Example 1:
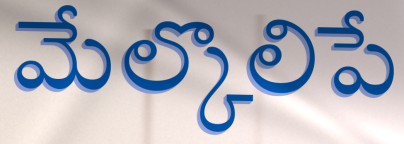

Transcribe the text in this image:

మేల్కొలిపే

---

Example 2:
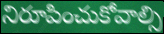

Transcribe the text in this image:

నిరూపించుకోవాల్సి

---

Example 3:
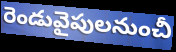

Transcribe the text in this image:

రెండువైపులనుంచీ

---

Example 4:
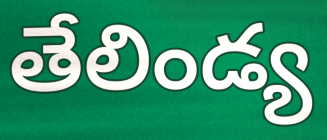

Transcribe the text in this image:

తేలిండ్య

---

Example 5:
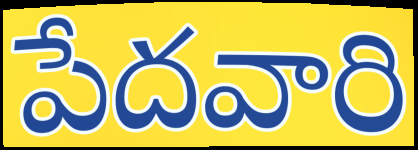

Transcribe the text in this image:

పేదవారి